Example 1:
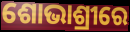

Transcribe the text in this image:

ଶୋଭାଶ୍ରୀରେ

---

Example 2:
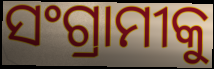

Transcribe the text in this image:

ସଂଗ୍ରାମୀକୁ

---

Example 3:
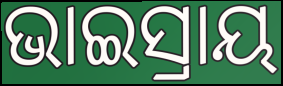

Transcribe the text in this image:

ଭାଇସ୍ରାୟ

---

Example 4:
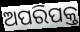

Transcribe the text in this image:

ଅପରିପକ୍ତ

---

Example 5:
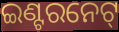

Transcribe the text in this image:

ଇଣ୍ଟରନେଟ୍